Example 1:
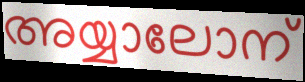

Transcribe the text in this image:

അയ്യാലോന്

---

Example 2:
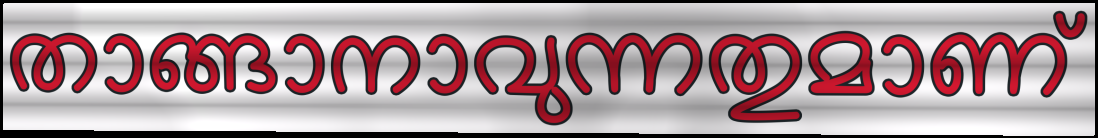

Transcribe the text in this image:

താങ്ങാനാവുന്നതുമാണ്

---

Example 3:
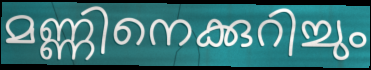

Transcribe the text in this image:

മണ്ണിനെക്കുറിച്ചും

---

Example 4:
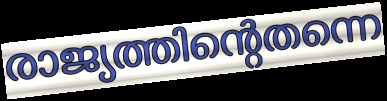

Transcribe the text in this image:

രാജ്യത്തിന്റെതന്നെ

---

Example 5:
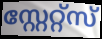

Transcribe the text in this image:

സ്റ്റേറ്റ്സ്